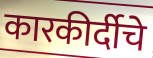
कारकीर्दीचे